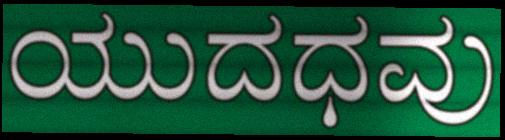
ಯುದಧವು